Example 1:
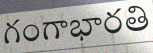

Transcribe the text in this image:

గంగాభారతి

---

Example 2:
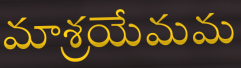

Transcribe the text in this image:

మాశ్రయేమమ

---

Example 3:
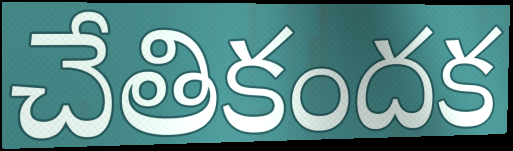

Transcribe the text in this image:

చేతికందక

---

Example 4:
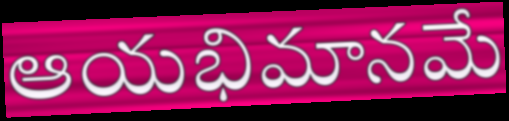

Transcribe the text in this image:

ఆయభిమానమే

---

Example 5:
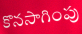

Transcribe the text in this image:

కొనసాగింపు